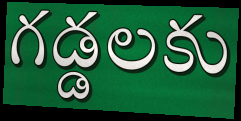
గడ్డలకు